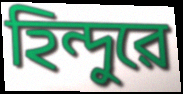
হিন্দুৱে